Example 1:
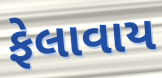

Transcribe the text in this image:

ફેલાવાય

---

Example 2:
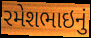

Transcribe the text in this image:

રમેશભાઇનું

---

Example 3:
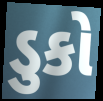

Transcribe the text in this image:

ડુકો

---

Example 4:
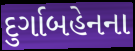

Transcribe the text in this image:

દુર્ગાબહેનના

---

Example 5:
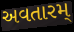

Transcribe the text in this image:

અવતારમ્